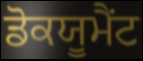
ਡੋਕਯੂਮੈਂਟ